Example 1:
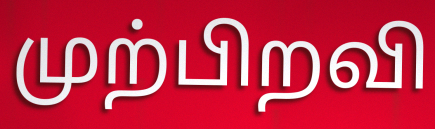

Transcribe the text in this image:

முற்பிறவி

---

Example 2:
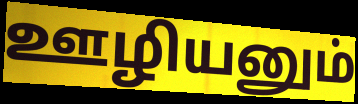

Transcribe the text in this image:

ஊழியனும்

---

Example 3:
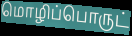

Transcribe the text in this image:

மொழிப்பொருட்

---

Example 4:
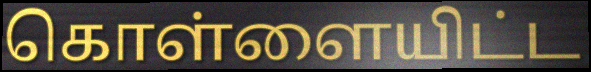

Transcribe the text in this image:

கொள்ளையிட்ட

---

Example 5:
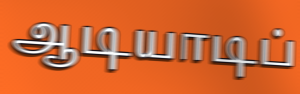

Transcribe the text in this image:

ஆடியாடிப்